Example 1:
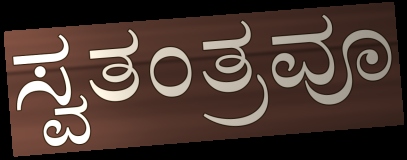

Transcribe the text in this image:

ಸ್ವತಂತ್ರವೂ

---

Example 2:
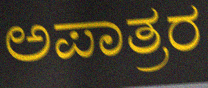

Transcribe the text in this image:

ಅಪಾತ್ರರ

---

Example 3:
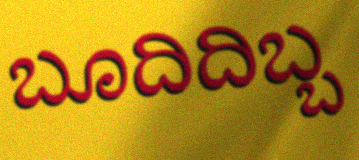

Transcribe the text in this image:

ಬೂದಿದಿಬ್ಬ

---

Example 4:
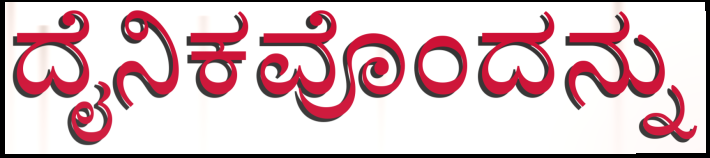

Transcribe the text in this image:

ದೈನಿಕವೊಂದನ್ನು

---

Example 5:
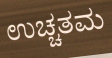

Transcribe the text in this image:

ಉಚ್ಚತಮ